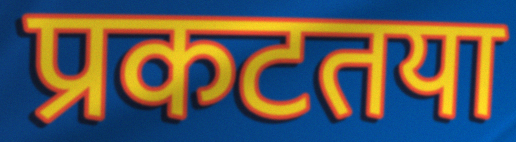
प्रकटतया